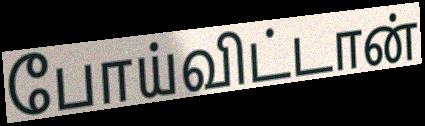
போய்விட்டான்